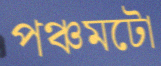
পঞ্চমটো